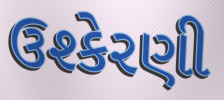
ઉશ્કેરણી